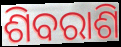
ଶିବରାଶି